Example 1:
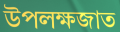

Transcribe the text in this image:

উপলক্ষজাত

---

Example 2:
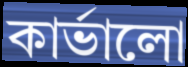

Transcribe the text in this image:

কার্ভালো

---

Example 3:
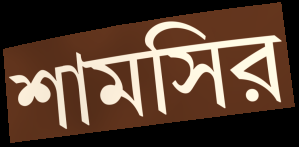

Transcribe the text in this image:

শামসির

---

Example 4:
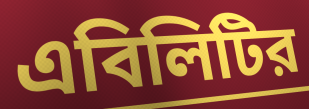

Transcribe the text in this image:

এবিলিটির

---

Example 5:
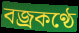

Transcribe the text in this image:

বজ্রকণ্ঠে